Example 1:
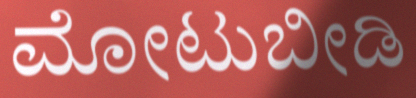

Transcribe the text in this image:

ಮೋಟುಬೀಡಿ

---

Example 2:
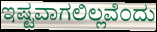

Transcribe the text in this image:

ಇಷ್ಟವಾಗಲಿಲ್ಲವೆಂದು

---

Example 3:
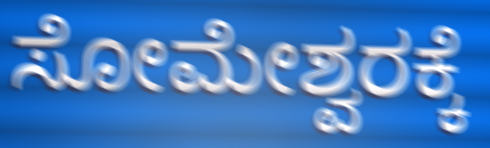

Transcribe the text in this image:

ಸೋಮೇಶ್ವರಕ್ಕೆ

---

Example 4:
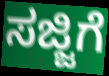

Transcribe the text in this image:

ಸಜ್ಜಿಗೆ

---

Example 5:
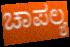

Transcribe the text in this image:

ಚಾಪಲ್ಯ